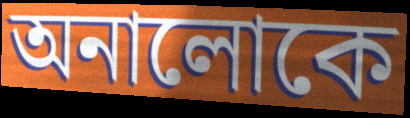
অনালোকে